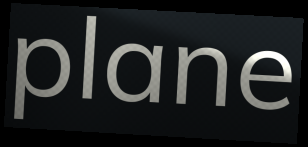
plane